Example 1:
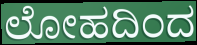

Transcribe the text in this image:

ಲೋಹದಿಂದ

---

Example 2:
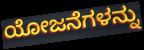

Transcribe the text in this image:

ಯೋಜನೆಗಳನ್ನು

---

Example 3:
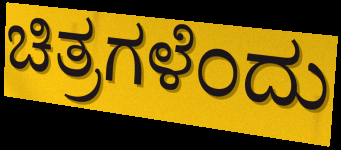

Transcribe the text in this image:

ಚಿತ್ರಗಳೆಂದು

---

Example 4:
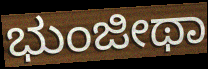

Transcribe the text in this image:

ಭುಂಜೀಥಾ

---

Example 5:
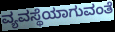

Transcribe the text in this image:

ವ್ಯವಸ್ಥೆಯಾಗುವಂತೆ